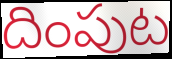
దింపుట